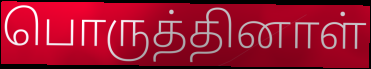
பொருத்தினாள்